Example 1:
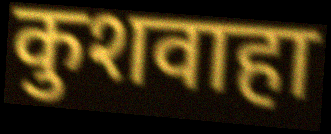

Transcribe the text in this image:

कुशवाहा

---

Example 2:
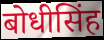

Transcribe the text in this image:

बोधीसिंह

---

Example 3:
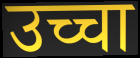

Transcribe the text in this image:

उच्चा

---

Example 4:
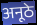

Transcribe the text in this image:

अनूठे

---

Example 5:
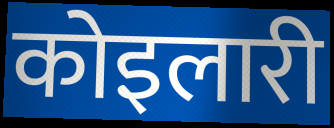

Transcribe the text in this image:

कोइलारी